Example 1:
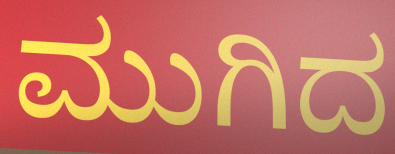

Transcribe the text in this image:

ಮುಗಿದ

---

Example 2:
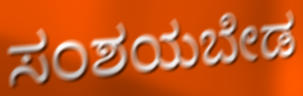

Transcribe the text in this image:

ಸಂಶಯಬೇಡ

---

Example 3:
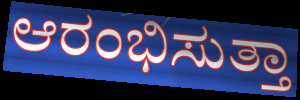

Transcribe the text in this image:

ಆರಂಭಿಸುತ್ತಾ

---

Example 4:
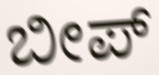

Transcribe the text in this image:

ಬೀಪ್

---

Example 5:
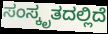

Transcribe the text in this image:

ಸಂಸ್ಕೃತದಲ್ಲಿದೆ